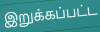
இறுக்கப்பட்ட